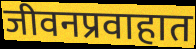
जीवनप्रवाहात